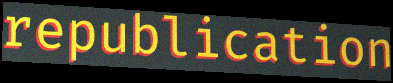
republication